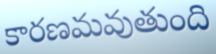
కారణమవుతుంది